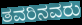
ತವರಿನವರು